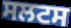
ਸਲਟਸ